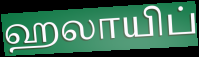
ஹலாயிப்